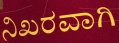
ನಿಖರವಾಗಿ